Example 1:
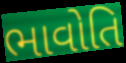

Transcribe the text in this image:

ભાવોતિ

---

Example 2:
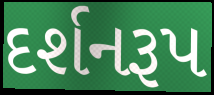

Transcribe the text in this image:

દર્શનરૂપ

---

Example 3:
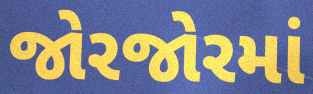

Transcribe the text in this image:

જોરજોરમાં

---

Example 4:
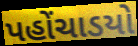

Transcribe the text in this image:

પહોંચાડયો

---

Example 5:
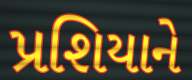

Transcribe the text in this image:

પ્રશિયાને